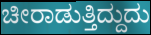
ಚೀರಾಡುತ್ತಿದ್ದುದು